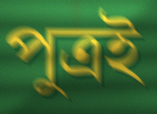
পুত্ৰই